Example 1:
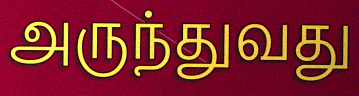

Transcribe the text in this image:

அருந்துவது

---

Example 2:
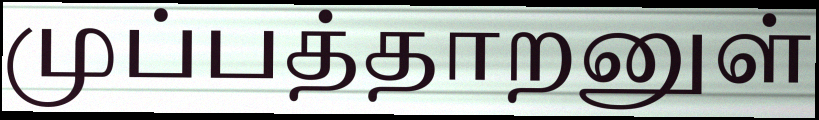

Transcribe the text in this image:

முப்பத்தாறனுள்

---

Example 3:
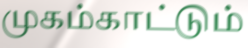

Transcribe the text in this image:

முகம்காட்டும்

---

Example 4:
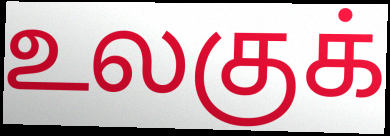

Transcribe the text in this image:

உலகுக்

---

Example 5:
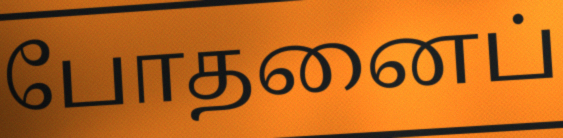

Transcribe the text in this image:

போதனைப்